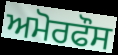
ਅਮੋਰਫੌਸ